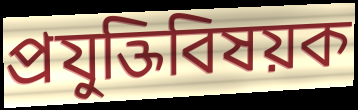
প্রযুক্তিবিষয়ক